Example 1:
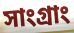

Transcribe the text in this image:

সাংগ্রাং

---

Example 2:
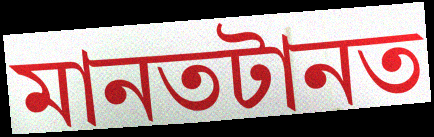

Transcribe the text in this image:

মানতটানত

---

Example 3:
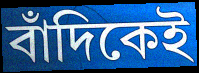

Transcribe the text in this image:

বাঁদিকেই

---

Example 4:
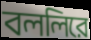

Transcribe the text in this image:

বললিরে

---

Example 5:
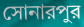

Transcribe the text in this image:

সোনারপুর